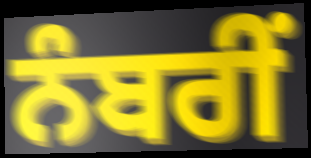
ਨੰਬਰੀਂ